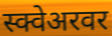
स्क्वेअरवर